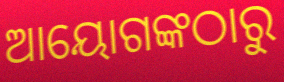
ଆୟୋଗଙ୍କଠାରୁ